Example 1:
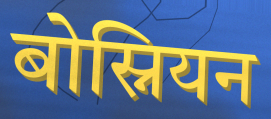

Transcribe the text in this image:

बोस्नियन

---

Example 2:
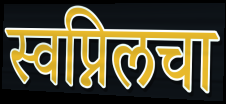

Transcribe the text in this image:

स्वप्निलचा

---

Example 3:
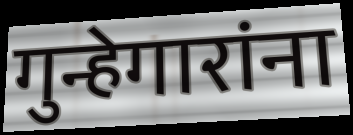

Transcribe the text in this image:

गुन्हेगारांना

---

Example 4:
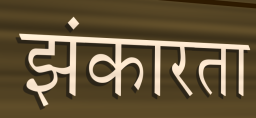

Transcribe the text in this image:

झंकारता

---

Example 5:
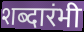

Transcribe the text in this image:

शब्दारंभी